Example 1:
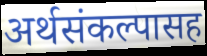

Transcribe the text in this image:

अर्थसंकल्पासह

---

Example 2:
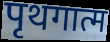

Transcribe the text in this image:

पृथगात्म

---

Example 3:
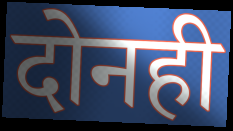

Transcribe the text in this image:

दोनही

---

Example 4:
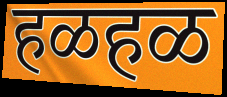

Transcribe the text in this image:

हळहळ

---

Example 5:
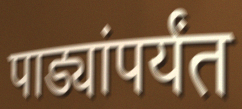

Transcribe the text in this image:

पाड्यांपर्यंत